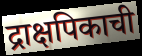
द्राक्षपिकाची